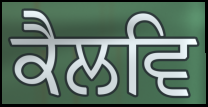
ਕੈਲਵਿ